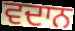
ਵਦਾਨ